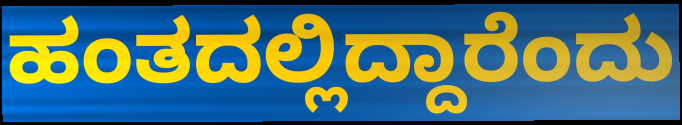
ಹಂತದಲ್ಲಿದ್ದಾರೆಂದು